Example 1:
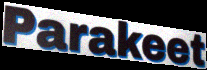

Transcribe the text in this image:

Parakeet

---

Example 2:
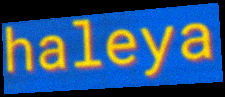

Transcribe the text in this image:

haleya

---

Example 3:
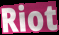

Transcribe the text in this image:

Riot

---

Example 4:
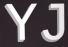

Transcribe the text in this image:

YJ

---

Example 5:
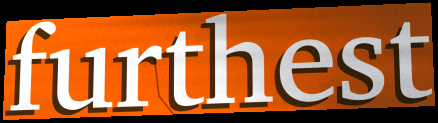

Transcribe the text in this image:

furthest